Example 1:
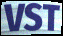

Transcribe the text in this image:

VST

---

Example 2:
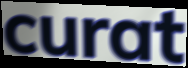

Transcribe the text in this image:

curat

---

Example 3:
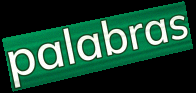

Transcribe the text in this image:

palabras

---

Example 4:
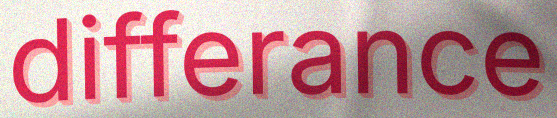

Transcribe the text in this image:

differance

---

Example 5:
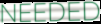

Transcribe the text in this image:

NEEDED